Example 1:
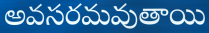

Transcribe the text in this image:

అవసరమవుతాయి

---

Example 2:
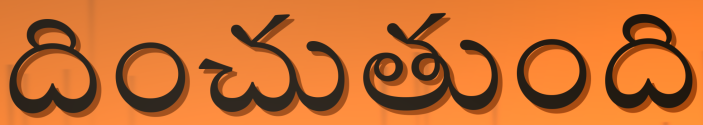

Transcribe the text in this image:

దించుతుంది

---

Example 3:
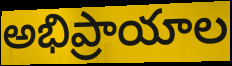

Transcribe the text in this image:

అభిప్రాయాల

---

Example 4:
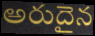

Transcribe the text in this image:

అరుదైన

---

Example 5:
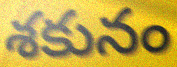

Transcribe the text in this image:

శకునం